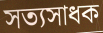
সত্যসাধক